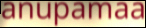
anupamaa